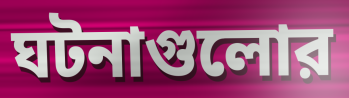
ঘটনাগুলোর